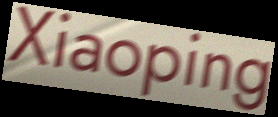
Xiaoping